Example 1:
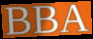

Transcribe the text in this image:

BBA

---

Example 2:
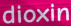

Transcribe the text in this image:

dioxin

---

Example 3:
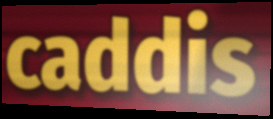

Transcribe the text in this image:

caddis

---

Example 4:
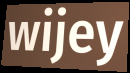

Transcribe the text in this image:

wijey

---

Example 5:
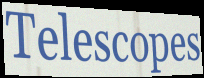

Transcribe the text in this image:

Telescopes